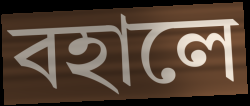
বহালে